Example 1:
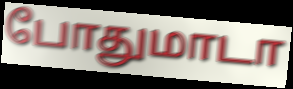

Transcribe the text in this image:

போதுமாடா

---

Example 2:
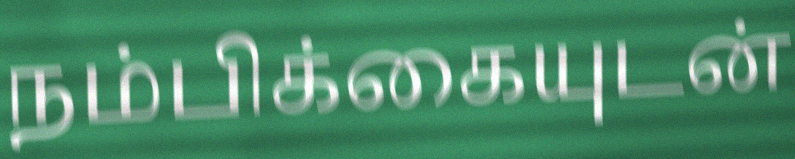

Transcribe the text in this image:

நம்பிக்கையுடன்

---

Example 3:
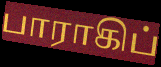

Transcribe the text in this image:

பாராகிப்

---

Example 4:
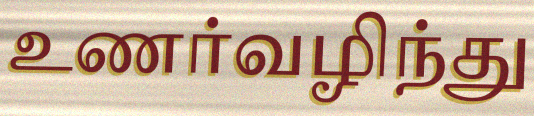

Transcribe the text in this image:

உணர்வழிந்து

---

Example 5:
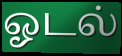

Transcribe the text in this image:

ஓடல்